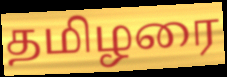
தமிழரை